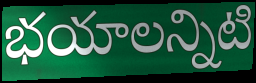
భయాలన్నిటి